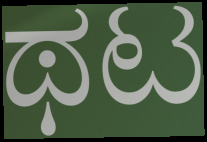
ಥಟ